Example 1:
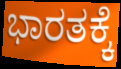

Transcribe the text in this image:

ಭಾರತಕ್ಕೆ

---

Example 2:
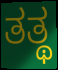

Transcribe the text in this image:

ತತ್ಥ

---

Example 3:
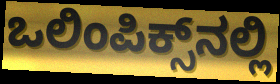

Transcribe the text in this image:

ಒಲಿಂಪಿಕ್ಸ್‌ನಲ್ಲಿ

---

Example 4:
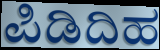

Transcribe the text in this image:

ಪಿಡಿದಿಹ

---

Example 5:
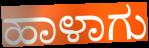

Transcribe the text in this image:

ಹಾಳಾಗು